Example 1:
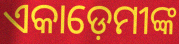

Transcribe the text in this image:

ଏକାଡ଼େମୀଙ୍କ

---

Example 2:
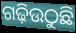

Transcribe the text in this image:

ଗଢ଼ିଉଠୁଛି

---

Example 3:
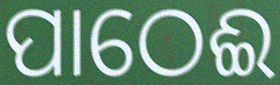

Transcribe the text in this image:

ପାଠେଈ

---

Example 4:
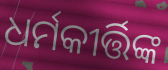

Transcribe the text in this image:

ଧର୍ମକୀର୍ତ୍ତିଙ୍କ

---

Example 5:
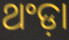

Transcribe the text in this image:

ଥଂଡ଼ା